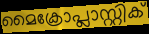
മൈക്രോപ്ലാസ്റ്റിക്